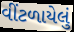
વીંટળાયેલું